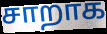
சாறாக